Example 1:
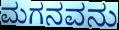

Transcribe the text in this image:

ಮಗನವನು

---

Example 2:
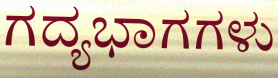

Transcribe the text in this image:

ಗದ್ಯಭಾಗಗಳು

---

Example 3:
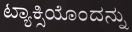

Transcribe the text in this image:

ಟ್ಯಾಕ್ಸಿಯೊಂದನ್ನು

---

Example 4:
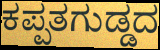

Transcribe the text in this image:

ಕಪ್ಪತಗುಡ್ಡದ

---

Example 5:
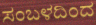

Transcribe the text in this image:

ಸಂಬಳದಿಂದ